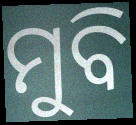
ମୁବି